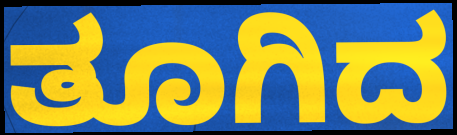
ತೂಗಿದ